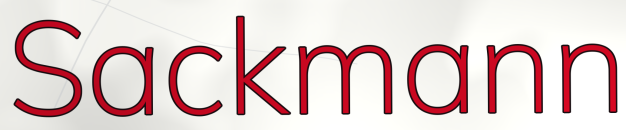
Sackmann